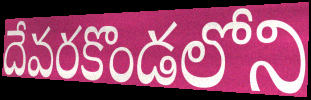
దేవరకొండలోని